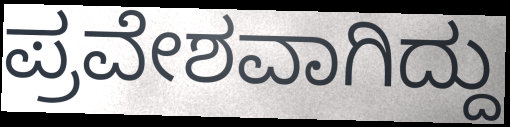
ಪ್ರವೇಶವಾಗಿದ್ದು